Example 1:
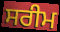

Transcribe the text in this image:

ਸਰੀਮ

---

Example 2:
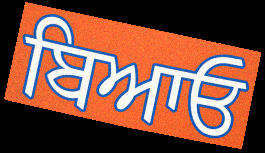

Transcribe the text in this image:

ਬਿਆਓ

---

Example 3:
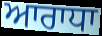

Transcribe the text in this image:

ਆਰਾਧਾ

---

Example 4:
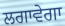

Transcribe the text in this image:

ਲਗਾਵੇਗਾ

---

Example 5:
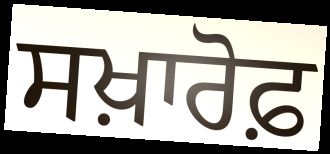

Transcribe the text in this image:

ਸਖ਼ਾਰੋਫ਼